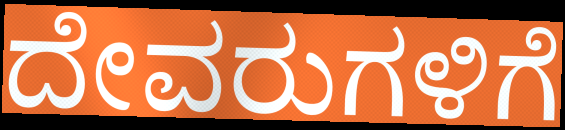
ದೇವರುಗಳಿಗೆ